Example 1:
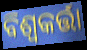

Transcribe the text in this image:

ବିଶ୍ୱକର୍ତ୍ତା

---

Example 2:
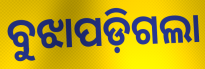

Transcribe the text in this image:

ବୁଝାପଡ଼ିଗଲା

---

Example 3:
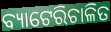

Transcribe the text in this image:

ବ୍ୟାଟେରିଚାଳିତ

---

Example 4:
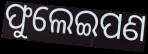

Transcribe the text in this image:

ଫୁଲେଇପଣ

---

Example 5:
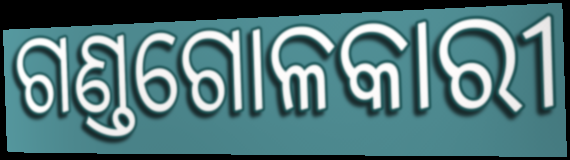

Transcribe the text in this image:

ଗଣ୍ଡଗୋଳକାରୀ